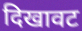
दिखावट